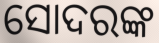
ସୋଦରଙ୍କ